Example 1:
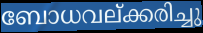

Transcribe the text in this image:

ബോധവല്ക്കരിച്ചു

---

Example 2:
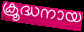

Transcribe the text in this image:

ക്രൂദ്ധനായ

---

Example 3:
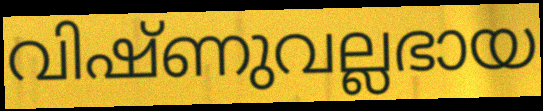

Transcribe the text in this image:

വിഷ്ണുവല്ലഭായ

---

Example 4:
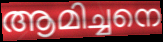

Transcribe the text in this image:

ആമിച്ചനെ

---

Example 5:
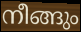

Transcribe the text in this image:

നീങ്ങും